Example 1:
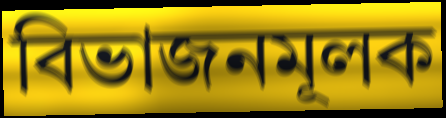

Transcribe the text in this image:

বিভাজনমূলক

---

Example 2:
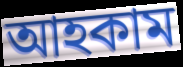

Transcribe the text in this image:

আহকাম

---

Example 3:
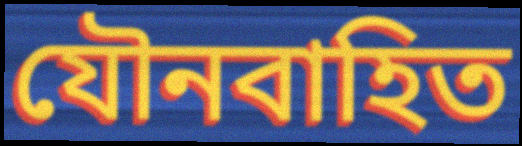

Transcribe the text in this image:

যৌনবাহিত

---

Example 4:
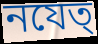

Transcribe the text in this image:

নযেত্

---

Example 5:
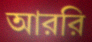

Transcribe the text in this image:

আররি